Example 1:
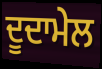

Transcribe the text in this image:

ਦੂਦਾਮੇਲ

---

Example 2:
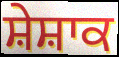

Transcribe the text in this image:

ਸ਼ੇਸ਼ਾਕ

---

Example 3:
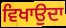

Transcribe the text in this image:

ਵਿਖਾਉਦਾ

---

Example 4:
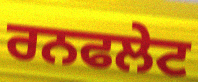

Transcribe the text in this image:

ਰਨਫਲੇਟ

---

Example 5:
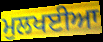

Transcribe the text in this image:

ਮੁਲਖਈਆ